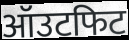
ऑउटफिट